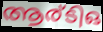
ആര്ടിഒ